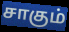
சாகும்